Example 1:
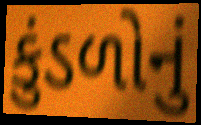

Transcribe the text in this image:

કુંડળોનું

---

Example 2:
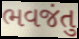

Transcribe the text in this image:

ભવજંતુ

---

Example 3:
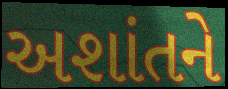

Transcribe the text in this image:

અશાંતને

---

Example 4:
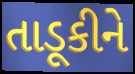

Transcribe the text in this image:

તાડૂકીને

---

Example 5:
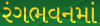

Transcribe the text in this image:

રંગભવનમાં